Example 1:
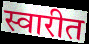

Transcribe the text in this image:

स्वारीत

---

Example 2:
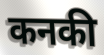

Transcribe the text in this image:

कनकी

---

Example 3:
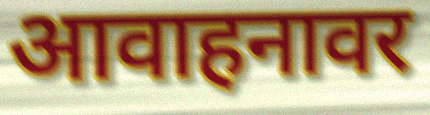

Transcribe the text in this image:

आवाहनावर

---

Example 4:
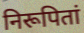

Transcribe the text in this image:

निरूपितां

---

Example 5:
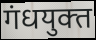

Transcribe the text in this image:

गंधयुक्‍त